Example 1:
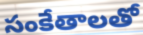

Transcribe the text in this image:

సంకేతాలతో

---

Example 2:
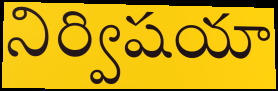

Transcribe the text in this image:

నిర్విషయా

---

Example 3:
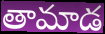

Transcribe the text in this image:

తామాడ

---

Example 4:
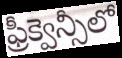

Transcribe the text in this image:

ఫ్రీక్వెన్సీలో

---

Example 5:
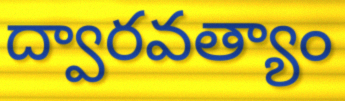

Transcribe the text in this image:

ద్వారవత్యాం